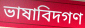
ভাষাবিদগণ